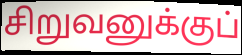
சிறுவனுக்குப்